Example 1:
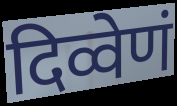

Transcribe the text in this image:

दिव्वेणं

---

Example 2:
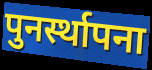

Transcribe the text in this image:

पुनर्स्थापना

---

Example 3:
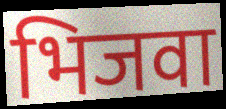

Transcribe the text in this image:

भिजवा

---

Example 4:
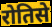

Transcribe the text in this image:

रोतिसे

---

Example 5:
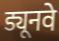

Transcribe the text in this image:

ड्यूनवे